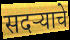
सदऱ्याचे